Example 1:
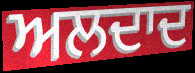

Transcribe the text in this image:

ਅਲਦਾਦ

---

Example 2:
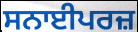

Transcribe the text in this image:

ਸਨਾਈਪਰਜ਼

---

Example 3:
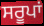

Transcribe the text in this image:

ਸਰੂਪਾਂ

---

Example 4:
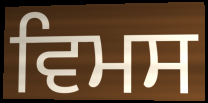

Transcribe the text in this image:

ਵਿਮਸ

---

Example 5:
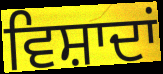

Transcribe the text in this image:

ਵਿਸ਼ਾਦਾਂ